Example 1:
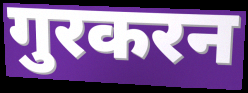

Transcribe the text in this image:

गुरकरन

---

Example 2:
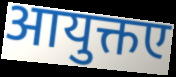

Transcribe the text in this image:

आयुक्तए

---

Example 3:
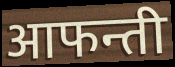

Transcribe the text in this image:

आफन्ती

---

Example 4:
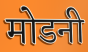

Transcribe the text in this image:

मोडनी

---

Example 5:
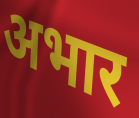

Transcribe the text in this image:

अभार